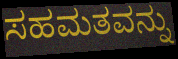
ಸಹಮತವನ್ನು